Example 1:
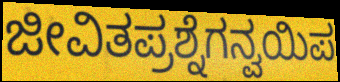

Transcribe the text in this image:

ಜೀವಿತಪ್ರಶ್ನೆಗನ್ವಯಿಪ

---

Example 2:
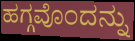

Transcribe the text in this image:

ಹಗ್ಗವೊಂದನ್ನು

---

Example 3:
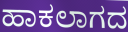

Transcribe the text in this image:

ಹಾಕಲಾಗದ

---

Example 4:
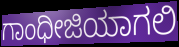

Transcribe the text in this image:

ಗಾಂಧೀಜಿಯಾಗಲಿ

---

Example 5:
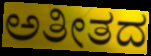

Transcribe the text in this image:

ಅತೀತದ